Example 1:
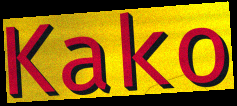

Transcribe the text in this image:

Kako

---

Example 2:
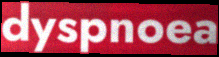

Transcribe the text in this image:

dyspnoea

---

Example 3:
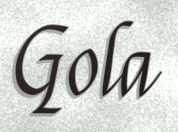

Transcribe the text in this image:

Gola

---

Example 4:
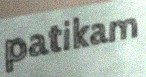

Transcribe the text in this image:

patikam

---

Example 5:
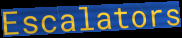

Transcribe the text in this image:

Escalators